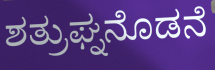
ಶತ್ರುಘ್ನನೊಡನೆ